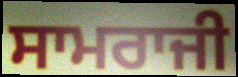
ਸਾਮਰਾਜੀ